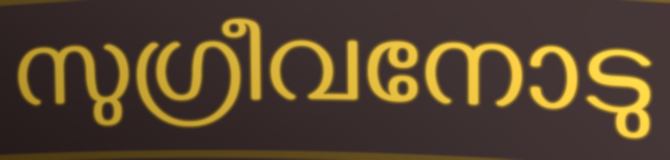
സുഗ്രീവനോടു